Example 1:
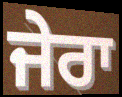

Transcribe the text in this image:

ਜੇਰਾ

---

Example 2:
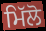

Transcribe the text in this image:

ਮਿੱਲੋ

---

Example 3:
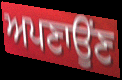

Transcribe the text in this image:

ਅਪਣਾਉਂਣ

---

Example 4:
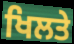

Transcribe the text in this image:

ਖਿਲਤੇ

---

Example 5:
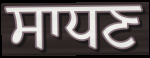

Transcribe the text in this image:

ਸਾਧਣ